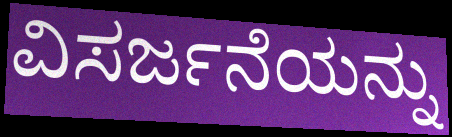
ವಿಸರ್ಜನೆಯನ್ನು